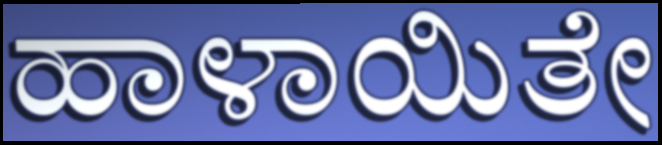
ಹಾಳಾಯಿತೇ